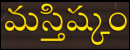
మస్తిష్కం